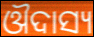
ଔଦାସ୍ୟ